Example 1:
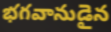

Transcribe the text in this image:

భగవానుడైన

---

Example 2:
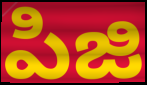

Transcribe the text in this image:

పిజి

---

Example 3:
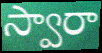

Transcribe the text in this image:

స్వారా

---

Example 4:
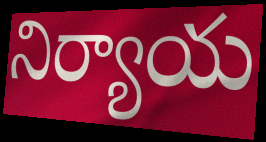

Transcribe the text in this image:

నిర్యాయ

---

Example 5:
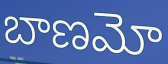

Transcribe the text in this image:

బాణమో